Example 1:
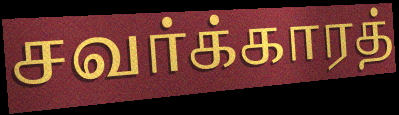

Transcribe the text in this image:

சவர்க்காரத்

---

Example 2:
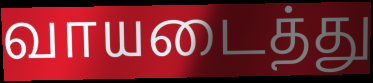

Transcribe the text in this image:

வாயடைத்து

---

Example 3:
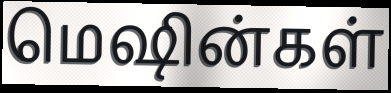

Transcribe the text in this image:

மெஷின்கள்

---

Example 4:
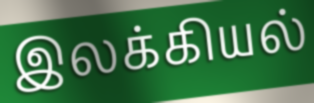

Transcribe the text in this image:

இலக்கியல்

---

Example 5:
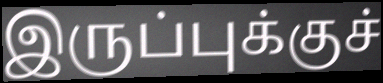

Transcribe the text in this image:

இருப்புக்குச்